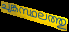
ചുങ്കസ്ഥലത്തു